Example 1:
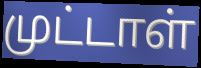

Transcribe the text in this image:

முட்டாள்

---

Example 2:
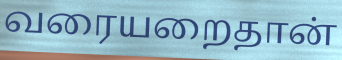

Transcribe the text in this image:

வரையறைதான்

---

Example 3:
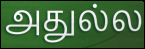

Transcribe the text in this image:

அதுல்ல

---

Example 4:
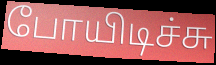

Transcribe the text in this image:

போயிடிச்சு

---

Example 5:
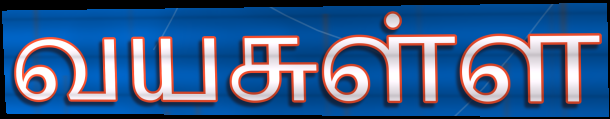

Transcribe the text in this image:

வயசுள்ள